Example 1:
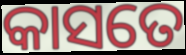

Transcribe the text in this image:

କାସତେ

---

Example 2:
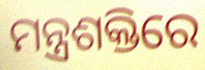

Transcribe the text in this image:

ମନ୍ତ୍ରଶକ୍ତିରେ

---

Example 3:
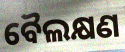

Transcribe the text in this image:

ବୈଲକ୍ଷଣ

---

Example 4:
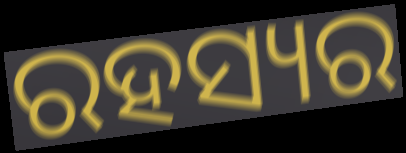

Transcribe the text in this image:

ରହସ୍ୟର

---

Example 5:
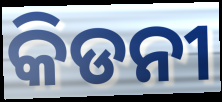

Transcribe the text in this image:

କିଡନୀ